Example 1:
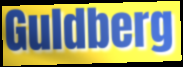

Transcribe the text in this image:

Guldberg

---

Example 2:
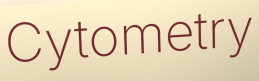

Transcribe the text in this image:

Cytometry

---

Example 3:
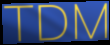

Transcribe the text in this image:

TDM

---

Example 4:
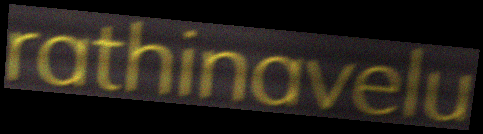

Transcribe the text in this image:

rathinavelu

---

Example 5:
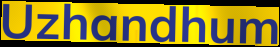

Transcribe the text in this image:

Uzhandhum